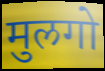
मुलगो